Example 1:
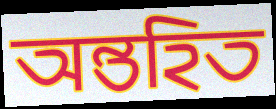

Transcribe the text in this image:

অন্তহিত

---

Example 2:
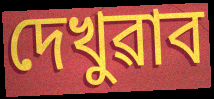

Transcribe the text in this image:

দেখুৱাব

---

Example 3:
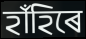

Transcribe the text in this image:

হাঁহিৰে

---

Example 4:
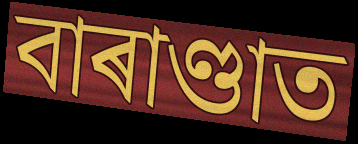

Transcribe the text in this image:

বাৰাণ্ডাত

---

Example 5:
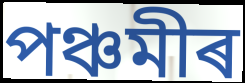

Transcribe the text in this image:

পঞ্চমীৰ